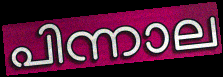
പിന്നാല